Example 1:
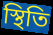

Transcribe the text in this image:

স্থিতি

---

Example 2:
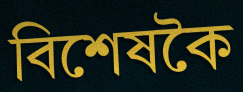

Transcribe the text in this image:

বিশেষকৈ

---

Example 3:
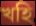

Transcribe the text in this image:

খহি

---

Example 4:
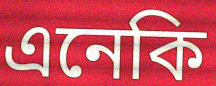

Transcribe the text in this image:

এনেকি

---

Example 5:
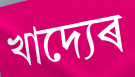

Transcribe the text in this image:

খাদ্যেৰ